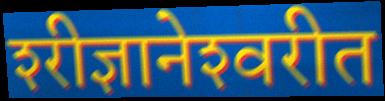
श्रीज्ञानेश्वरीत